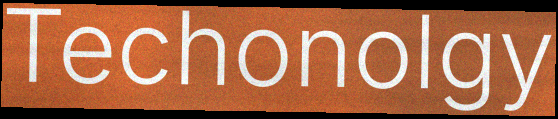
Techonolgy